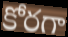
కోరగా